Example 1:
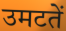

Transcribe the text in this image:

उमटतें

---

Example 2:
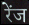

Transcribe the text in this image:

रेंज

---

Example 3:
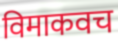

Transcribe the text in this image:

विमाकवच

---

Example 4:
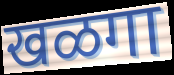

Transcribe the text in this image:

खळगा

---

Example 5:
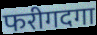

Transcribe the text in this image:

फरीगदगा